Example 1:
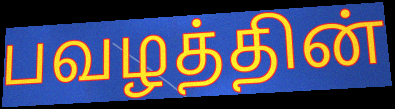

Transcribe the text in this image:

பவழத்தின்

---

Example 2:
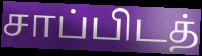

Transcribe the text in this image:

சாப்பிடத்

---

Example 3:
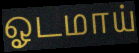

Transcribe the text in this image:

ஓடமாய்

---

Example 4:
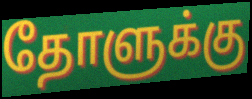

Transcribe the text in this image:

தோளுக்கு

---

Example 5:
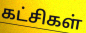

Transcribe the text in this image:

கட்சிகள்